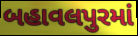
બહાવલપુરમાં